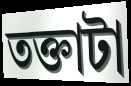
তক্তাটা